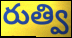
రుత్వి